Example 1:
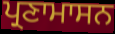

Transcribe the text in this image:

ਪ੍ਰਣਾਮਾਸਨ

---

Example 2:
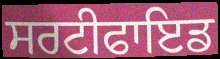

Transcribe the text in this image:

ਸਰਟੀਫਾਇਡ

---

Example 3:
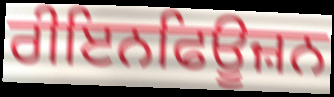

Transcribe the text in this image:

ਰੀਇਨਫਿਊਜ਼ਨ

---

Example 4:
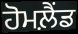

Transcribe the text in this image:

ਹੋਮਲ਼ੈਂਡ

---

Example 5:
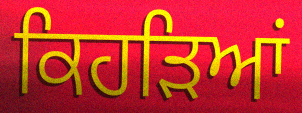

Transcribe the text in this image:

ਕਿਹੜਿਆਂ